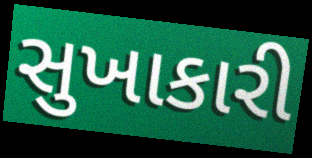
સુખાકારી